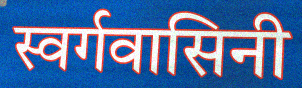
स्वर्गवासिनी